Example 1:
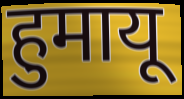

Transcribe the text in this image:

हुमायू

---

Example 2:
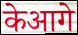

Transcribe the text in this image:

केआगे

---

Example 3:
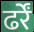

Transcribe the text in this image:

ढर्रें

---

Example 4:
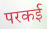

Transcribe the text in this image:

परकई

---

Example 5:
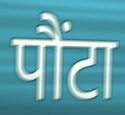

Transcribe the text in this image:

पौंटा